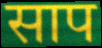
साप